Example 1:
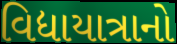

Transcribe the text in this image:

વિદ્યાયાત્રાનો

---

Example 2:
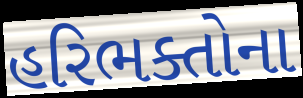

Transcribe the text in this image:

હરિભક્તોના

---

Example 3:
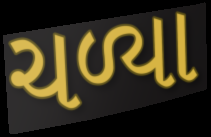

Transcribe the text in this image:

ચળ્યા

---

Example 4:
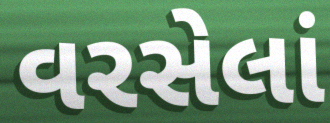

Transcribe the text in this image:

વરસેલાં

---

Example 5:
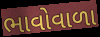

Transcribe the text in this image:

ભાવોવાળા